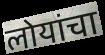
लोयांचा